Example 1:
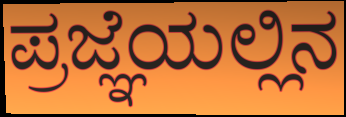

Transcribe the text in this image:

ಪ್ರಜ್ಞೆಯಲ್ಲಿನ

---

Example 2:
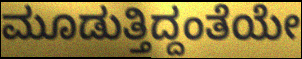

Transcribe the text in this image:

ಮೂಡುತ್ತಿದ್ದಂತೆಯೇ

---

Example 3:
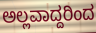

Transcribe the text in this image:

ಅಲ್ಲವಾದ್ದರಿಂದ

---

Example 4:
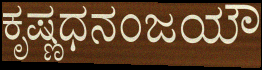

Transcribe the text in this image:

ಕೃಷ್ಣಧನಂಜಯೌ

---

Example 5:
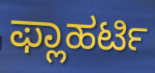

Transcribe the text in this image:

ಫ್ಲಾಹರ್ಟಿ